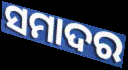
ସମାଦର